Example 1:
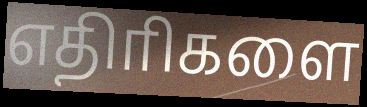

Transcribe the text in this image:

எதிரிகளை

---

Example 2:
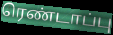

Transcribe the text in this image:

ரெண்டாப்பு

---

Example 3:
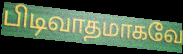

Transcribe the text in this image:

பிடிவாதமாகவே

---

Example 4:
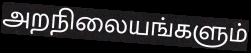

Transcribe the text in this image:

அறநிலையங்களும்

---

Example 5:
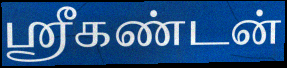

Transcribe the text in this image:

ஸ்ரீகண்டன்